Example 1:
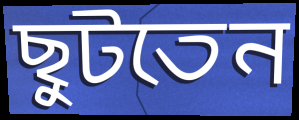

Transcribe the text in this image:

ছুটতেন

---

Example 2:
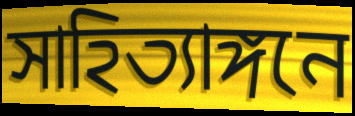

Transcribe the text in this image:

সাহিত্যাঙ্গনে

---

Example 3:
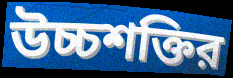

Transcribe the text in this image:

উচ্চশক্তির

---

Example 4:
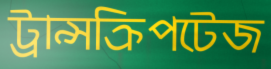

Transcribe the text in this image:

ট্রান্সক্রিপটেজ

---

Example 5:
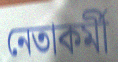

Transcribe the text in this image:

নেতাকর্মী